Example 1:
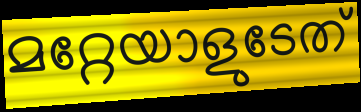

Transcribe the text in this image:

മറ്റേയാളുടേത്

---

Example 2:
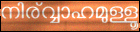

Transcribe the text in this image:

നിര്വ്വാഹമുള്ളൂ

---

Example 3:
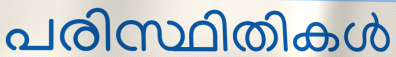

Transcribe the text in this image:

പരിസ്ഥിതികൾ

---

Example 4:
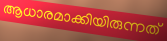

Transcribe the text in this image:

ആധാരമാക്കിയിരുന്നത്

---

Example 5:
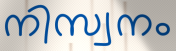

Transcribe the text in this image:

നിസ്വനം